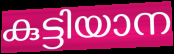
കുട്ടിയാന